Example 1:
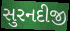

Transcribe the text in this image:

સુરનદીજી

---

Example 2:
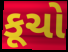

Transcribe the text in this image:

કૂચો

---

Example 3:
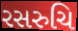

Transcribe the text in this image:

રસરુચિ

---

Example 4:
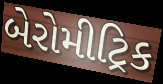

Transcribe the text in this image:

બેરોમીટ્રિક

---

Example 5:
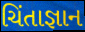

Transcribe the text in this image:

ચિંતાજ્ઞાન